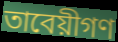
তাবেয়ীগণ